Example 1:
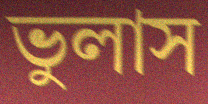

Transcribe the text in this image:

ভুলাস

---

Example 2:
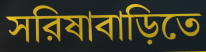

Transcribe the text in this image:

সরিষাবাড়িতে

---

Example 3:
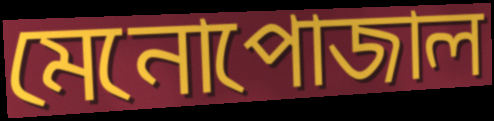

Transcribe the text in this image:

মেনোপোজাল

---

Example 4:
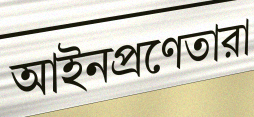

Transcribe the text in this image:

আইনপ্রণেতারা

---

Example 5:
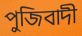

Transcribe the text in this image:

পুজিবাদী